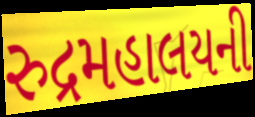
રુદ્રમહાલયની